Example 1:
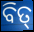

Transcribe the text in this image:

ବିତ୍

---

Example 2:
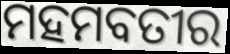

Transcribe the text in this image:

ମହମବତୀର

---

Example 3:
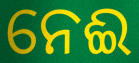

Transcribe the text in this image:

ନେଈ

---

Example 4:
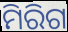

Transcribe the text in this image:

ମିରିଗ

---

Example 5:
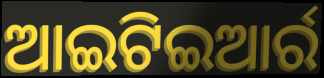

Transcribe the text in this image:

ଆଇଟିଇଆର୍ର